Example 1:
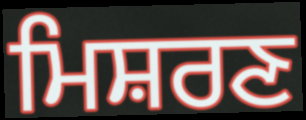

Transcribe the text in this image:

ਮਿਸ਼ਰਣ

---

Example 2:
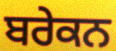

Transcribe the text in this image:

ਬਰੇਕਨ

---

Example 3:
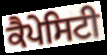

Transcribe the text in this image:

ਕੈਪੇਸਿਟੀ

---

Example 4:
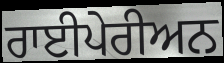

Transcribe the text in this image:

ਰਾਈਪੇਰੀਅਨ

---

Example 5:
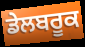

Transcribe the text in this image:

ਡੇਲਬਰੂਕ